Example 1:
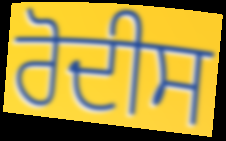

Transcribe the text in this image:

ਰੋਦੀਸ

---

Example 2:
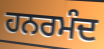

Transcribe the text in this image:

ਹਨਰਮੰਦ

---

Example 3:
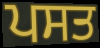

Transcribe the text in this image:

ਪਸਤ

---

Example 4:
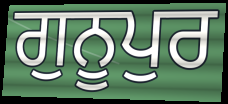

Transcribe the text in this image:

ਗੁਨੂਪੁਰ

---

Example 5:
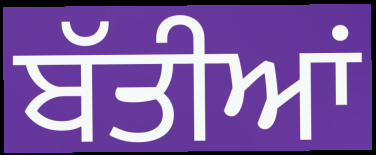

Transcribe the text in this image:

ਬੱਤੀਆਂ